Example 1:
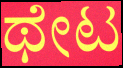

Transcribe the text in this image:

ಥೇಟ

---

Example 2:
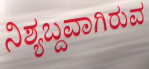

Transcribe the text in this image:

ನಿಶ್ಯಬ್ದವಾಗಿರುವ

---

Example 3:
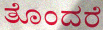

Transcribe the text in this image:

ತೊಂದರೆ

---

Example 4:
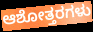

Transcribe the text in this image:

ಆಶೋತ್ತರಗಳು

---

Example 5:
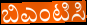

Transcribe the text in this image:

ಬಿಎಂಟಿಸಿ